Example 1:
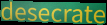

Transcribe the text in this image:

desecrate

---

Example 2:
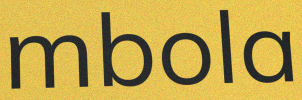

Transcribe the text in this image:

mbola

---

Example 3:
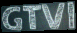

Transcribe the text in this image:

GTVI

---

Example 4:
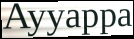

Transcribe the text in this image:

Ayyappa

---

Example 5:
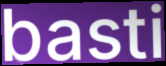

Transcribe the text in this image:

basti